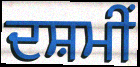
ਦਸ਼ਮੀਂ